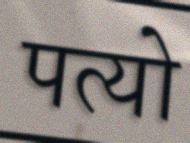
पत्यो